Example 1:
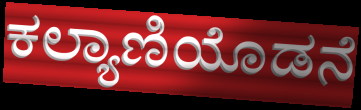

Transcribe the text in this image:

ಕಲ್ಯಾಣಿಯೊಡನೆ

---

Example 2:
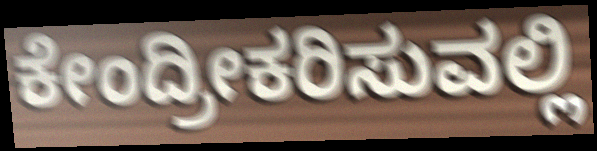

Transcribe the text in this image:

ಕೇಂದ್ರೀಕರಿಸುವಲ್ಲಿ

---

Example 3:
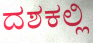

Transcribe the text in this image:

ದಶಕಲ್ಲಿ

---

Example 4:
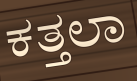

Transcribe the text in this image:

ಕತ್ತಲಾ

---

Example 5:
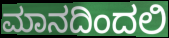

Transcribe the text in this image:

ಮಾನದಿಂದಲಿ